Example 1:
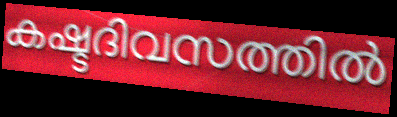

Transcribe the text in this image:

കഷ്ടദിവസത്തിൽ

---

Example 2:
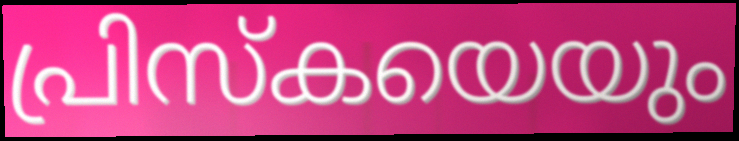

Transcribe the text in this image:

പ്രിസ്കയെയും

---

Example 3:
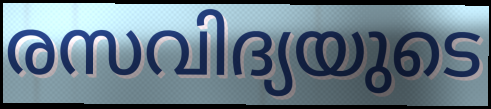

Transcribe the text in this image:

രസവിദ്യയുടെ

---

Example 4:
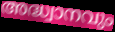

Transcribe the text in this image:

അദ്ധ്വാനവും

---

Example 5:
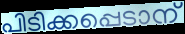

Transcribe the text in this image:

പിടിക്കപ്പെടാന്